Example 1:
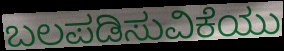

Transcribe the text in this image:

ಬಲಪಡಿಸುವಿಕೆಯು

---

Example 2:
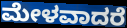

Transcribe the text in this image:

ಮೇಳವಾದರೆ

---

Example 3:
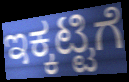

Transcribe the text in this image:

ಇಕ್ಕಟ್ಟಿಗೆ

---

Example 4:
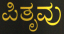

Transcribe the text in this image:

ಪಿತೃವು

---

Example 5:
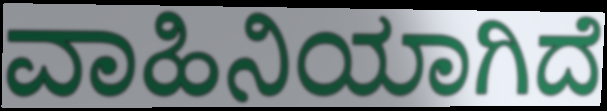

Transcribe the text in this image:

ವಾಹಿನಿಯಾಗಿದೆ